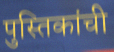
पुस्तिकांची